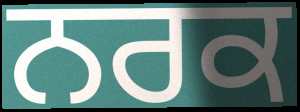
ਨਰਕ